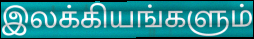
இலக்கியங்களும்